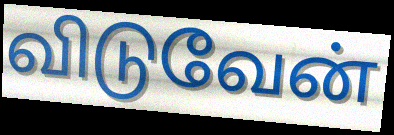
விடுவேன்